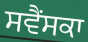
ਸਵੈਂਸਕਾ